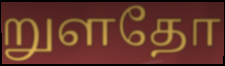
றுளதோ